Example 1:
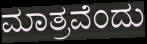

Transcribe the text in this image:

ಮಾತ್ರವೆಂದು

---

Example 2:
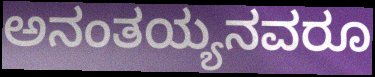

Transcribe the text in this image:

ಅನಂತಯ್ಯನವರೂ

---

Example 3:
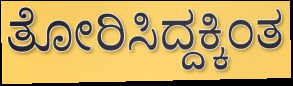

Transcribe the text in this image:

ತೋರಿಸಿದ್ದಕ್ಕಿಂತ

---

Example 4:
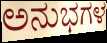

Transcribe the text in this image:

ಅನುಭಗಳ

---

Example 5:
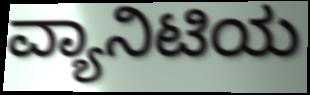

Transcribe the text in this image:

ವ್ಯಾನಿಟಿಯ